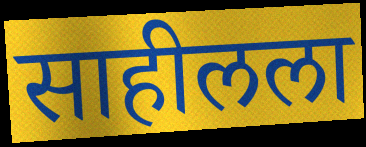
साहीलला